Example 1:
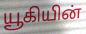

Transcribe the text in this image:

யூகியின்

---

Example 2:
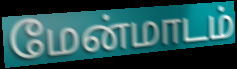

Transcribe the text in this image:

மேன்மாடம்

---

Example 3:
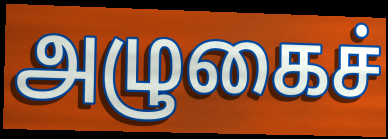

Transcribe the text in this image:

அழுகைச்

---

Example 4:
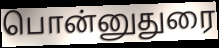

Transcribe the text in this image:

பொன்னுதுரை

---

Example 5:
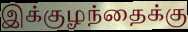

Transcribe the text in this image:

இக்குழந்தைக்கு